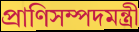
প্রাণিসম্পদমন্ত্রী